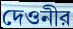
দেওনীর